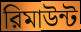
রিমাউন্ট